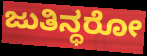
ಜುತಿನ್ಧರೋ